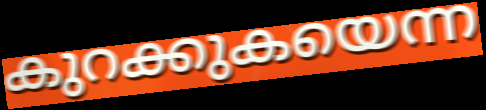
കുറക്കുകയെന്ന